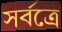
সৰ্বত্ৰে